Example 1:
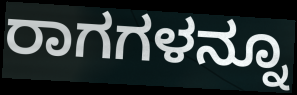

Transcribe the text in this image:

ರಾಗಗಳನ್ನೂ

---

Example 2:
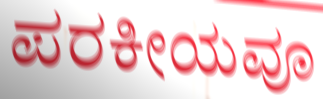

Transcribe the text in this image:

ಪರಕೀಯವೂ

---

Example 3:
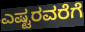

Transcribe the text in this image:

ಎಷ್ಟರವರೆಗೆ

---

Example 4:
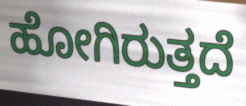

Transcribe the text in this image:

ಹೋಗಿರುತ್ತದೆ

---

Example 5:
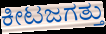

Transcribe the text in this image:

ಕೀಟಜಗತ್ತು